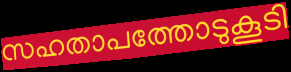
സഹതാപത്തോടുകൂടി